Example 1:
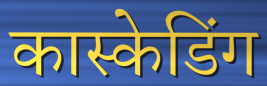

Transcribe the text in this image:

कास्केडिंग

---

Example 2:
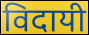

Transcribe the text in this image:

विदायी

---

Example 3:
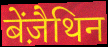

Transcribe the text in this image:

बेंज़ैथिन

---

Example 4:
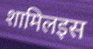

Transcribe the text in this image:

शामिलइस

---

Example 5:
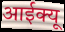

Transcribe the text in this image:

आईक्‍यू